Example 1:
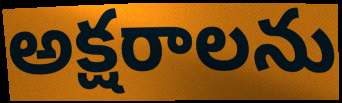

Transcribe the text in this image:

అక్షరాలను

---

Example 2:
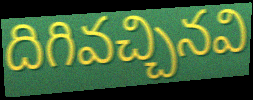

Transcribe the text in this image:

దిగివచ్చినవి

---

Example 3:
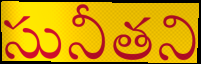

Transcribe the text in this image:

సునీతని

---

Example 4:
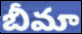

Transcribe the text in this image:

బీమా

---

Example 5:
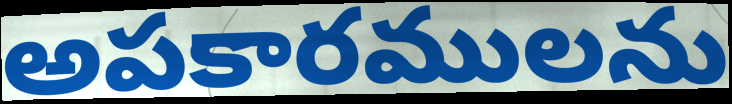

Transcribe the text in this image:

అపకారములను